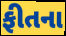
ફીતના